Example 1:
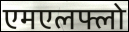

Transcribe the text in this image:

एमएलफ्लो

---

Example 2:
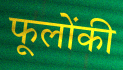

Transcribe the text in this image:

फूलोंकी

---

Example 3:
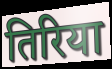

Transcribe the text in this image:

तिरिया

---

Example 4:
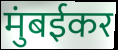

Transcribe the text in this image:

मुंबईकर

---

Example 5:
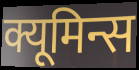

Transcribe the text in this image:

क्यूमिन्स